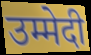
उम्मेदी